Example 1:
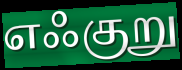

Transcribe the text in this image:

எஃகுறு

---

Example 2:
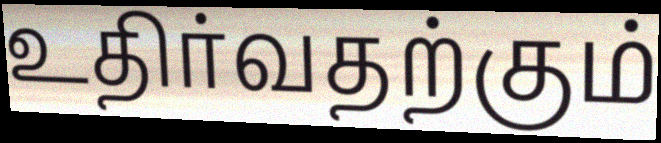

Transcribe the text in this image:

உதிர்வதற்கும்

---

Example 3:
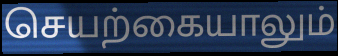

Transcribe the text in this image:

செயற்கையாலும்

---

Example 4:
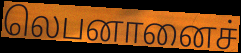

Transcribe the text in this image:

லெபனானைச்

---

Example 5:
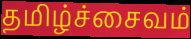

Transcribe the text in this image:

தமிழ்ச்சைவம்